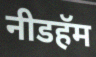
नीडहॅम